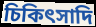
চিকিৎসাদি